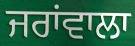
ਜਰਾਂਵਾਲਾ